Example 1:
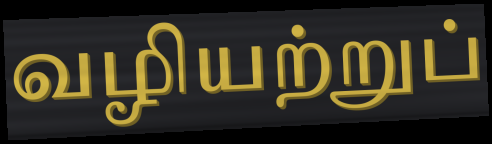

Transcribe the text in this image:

வழியற்றுப்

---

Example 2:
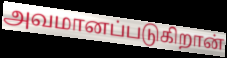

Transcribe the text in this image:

அவமானப்படுகிறான்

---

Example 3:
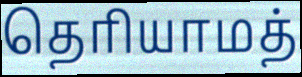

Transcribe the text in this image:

தெரியாமத்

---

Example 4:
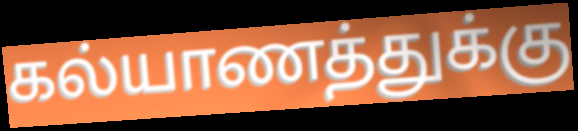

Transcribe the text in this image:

கல்யாணத்துக்கு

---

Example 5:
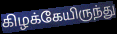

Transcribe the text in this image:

கிழக்கேயிருந்து